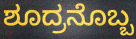
ಶೂದ್ರನೊಬ್ಬ